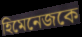
হিমেনেজকে